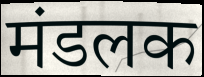
मंडलक